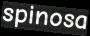
spinosa